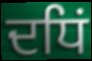
ਦਧਿਂ